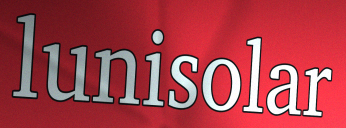
lunisolar